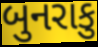
બુનરાકુ